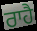
ਰਾਹੈ